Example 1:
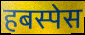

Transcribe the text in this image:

हबस्पेस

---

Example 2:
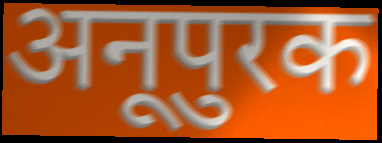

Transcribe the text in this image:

अनूपुरक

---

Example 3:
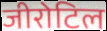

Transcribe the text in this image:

जीरोटिल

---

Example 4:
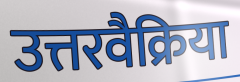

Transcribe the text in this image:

उत्तरवैक्रिया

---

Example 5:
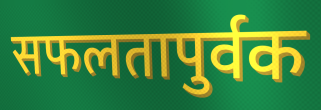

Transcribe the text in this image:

सफलतापुर्वक